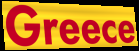
Greece